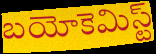
బయోకెమిస్ట్